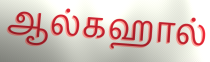
ஆல்கஹால்